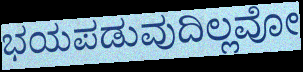
ಭಯಪಡುವುದಿಲ್ಲವೋ